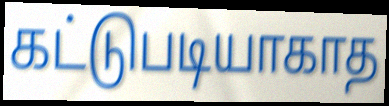
கட்டுபடியாகாத